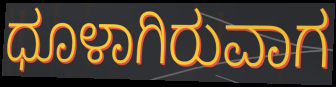
ಧೂಳಾಗಿರುವಾಗ